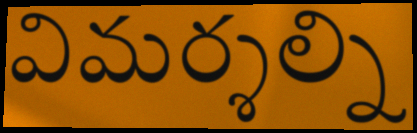
విమర్శల్ని